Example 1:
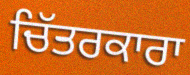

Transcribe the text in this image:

ਚਿੱਤਰਕਾਰਾ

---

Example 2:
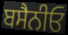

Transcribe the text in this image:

ਬਸੈਨੀਓ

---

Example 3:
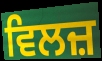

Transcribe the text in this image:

ਵਿਲਜ਼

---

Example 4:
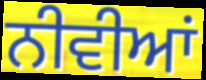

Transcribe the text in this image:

ਨੀਵੀਆਂ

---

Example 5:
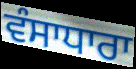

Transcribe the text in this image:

ਵੰਸਾਧਾਰਾ